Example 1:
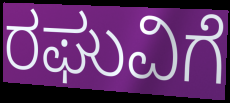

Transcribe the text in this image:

ರಘುವಿಗೆ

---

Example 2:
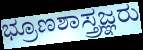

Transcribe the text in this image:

ಭ್ರೂಣಶಾಸ್ತ್ರಜ್ಞರು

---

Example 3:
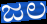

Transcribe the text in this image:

ಜಲ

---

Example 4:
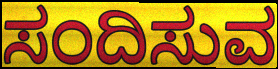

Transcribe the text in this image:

ಸಂದಿಸುವ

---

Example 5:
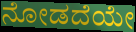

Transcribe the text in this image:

ನೋಡದೆಯೇ